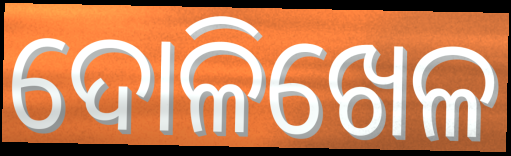
ଦୋଳିଖେଳ